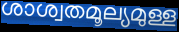
ശാശ്വതമൂല്യമുള്ള